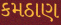
કમઠાણ